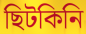
ছিটকিনি